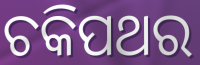
ଚକିପଥର